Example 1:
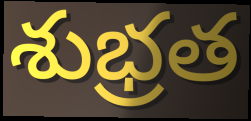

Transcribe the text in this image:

శుభ్రత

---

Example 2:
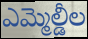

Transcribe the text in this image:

ఎమ్మెల్డీల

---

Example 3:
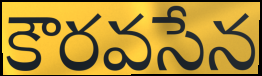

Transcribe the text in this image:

కౌరవసేన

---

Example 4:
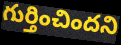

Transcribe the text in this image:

గుర్తించిందని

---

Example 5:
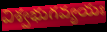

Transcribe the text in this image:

విశ్వభుగవ్యయః